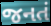
જનતં